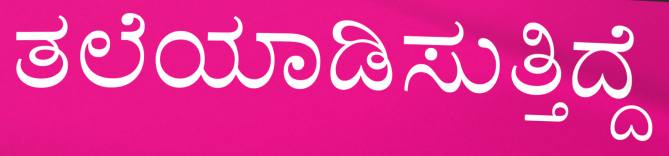
ತಲೆಯಾಡಿಸುತ್ತಿದ್ದೆ